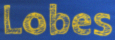
Lobes